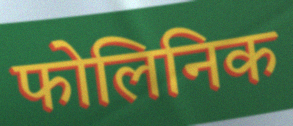
फोलिनिक